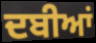
ਦਬੀਆਂ